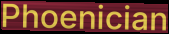
Phoenician